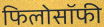
फिलोसॉफी